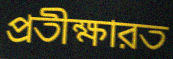
প্রতীক্ষারত